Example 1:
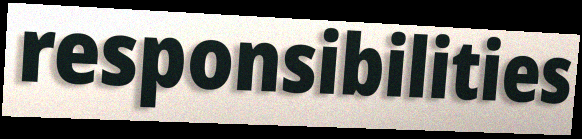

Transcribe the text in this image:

responsibilities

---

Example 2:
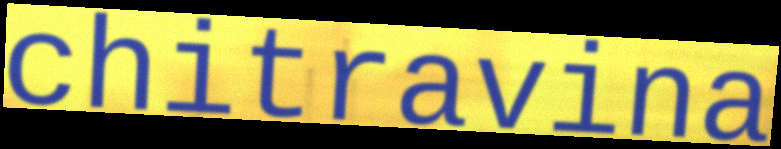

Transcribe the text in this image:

chitravina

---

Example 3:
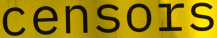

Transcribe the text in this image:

censors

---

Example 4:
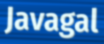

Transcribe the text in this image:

Javagal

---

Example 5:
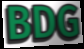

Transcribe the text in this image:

BDG